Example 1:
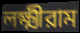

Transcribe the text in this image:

লক্ষ্মীরাম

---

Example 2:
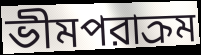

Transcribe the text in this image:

ভীমপরাক্রম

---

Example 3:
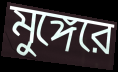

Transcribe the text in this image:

মুঙ্গেরে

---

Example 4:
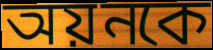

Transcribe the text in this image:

অয়নকে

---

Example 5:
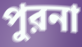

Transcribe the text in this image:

পুরনা